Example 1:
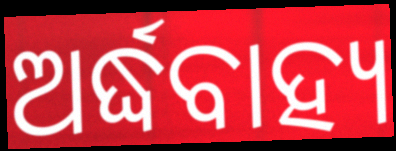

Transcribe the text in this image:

ଅର୍ଦ୍ଧବାହ୍ୟ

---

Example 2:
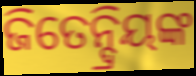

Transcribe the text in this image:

ଜିତେନ୍ଦ୍ରିୟଙ୍କ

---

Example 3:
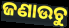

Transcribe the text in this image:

ଜଣାଉଚୁ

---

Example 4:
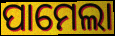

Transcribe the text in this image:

ପାମେଲା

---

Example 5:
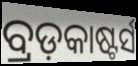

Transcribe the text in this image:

ବ୍ରଡ଼କାଷ୍ଟର୍ସ